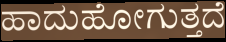
ಹಾದುಹೋಗುತ್ತದೆ